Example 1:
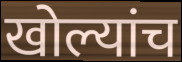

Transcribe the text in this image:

खोल्यांच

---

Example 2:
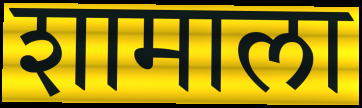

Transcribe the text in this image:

शामाला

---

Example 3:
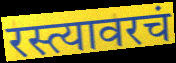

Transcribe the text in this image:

रस्त्यावरचं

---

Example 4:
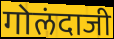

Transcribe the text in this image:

गोलंदाजी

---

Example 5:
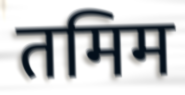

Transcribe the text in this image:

तमिम